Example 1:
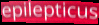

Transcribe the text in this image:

epilepticus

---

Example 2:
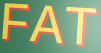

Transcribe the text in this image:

FAT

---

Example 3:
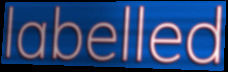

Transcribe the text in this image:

labelled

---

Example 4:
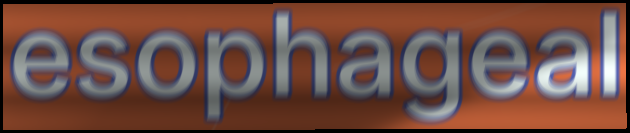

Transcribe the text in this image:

esophageal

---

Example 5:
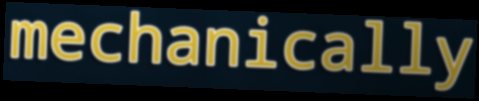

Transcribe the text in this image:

mechanically